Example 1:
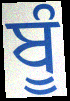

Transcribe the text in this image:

ਬੂੰ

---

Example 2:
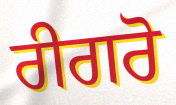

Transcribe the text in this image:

ਰੀਗਰੋ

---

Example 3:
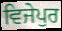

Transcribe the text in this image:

ਵਿਜੇਪੁਰ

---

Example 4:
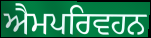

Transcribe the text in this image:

ਐਮਪਰਿਵਹਨ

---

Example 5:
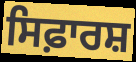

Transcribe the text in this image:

ਸਿਫ਼ਾਰਸ਼